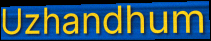
Uzhandhum